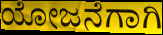
ಯೋಜನೆಗಾಗಿ